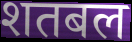
शतबल